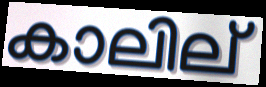
കാലില്